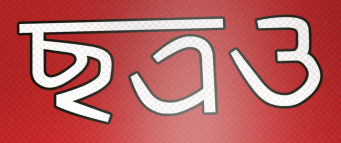
ছত্রও